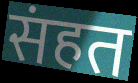
संहत